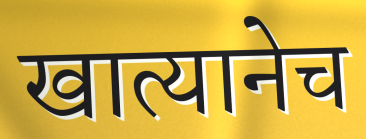
खात्यानेच